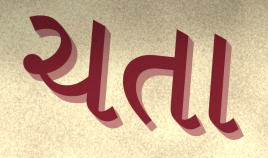
ચતા